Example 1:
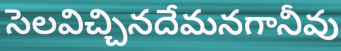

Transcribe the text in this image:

సెలవిచ్చినదేమనగానీవు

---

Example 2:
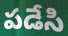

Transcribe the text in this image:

పడేసి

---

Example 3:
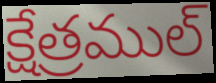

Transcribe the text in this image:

క్షేత్రముల్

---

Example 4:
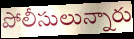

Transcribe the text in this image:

పోలీసులున్నారు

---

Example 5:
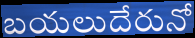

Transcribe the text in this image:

బయలుదేరునో